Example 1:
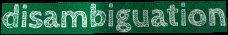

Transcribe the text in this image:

disambiguation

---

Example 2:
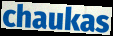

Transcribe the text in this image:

chaukas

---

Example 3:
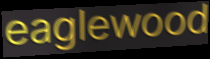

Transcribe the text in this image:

eaglewood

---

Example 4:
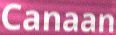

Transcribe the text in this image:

Canaan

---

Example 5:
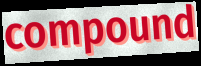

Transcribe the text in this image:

compound